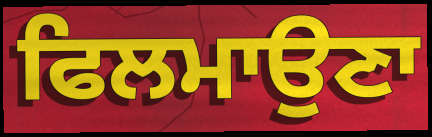
ਫਿਲਮਾਉਣਾ